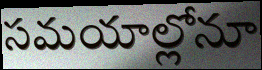
సమయాల్లోనూ